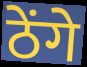
ठेंगे